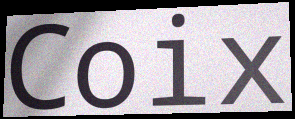
Coix